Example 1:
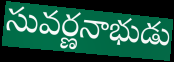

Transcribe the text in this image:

సువర్ణనాభుడు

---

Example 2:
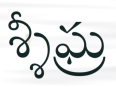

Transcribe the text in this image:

శ్శీఘ్ర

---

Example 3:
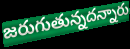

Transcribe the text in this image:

జరుగుతున్నదన్నారు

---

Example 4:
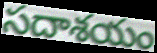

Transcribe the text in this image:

సదాశయం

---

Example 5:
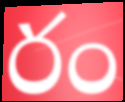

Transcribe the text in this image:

రం